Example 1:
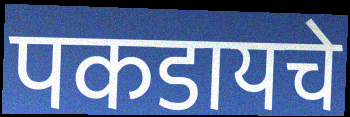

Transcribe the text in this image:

पकडायचे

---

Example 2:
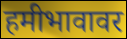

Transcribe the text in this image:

हमीभावावर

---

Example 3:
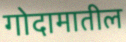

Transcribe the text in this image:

गोदामातील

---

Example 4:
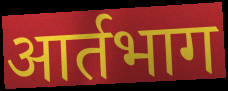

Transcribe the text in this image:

आर्तभाग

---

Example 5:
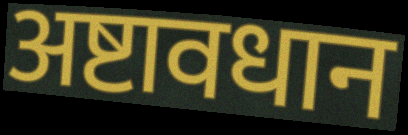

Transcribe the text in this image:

अष्टावधान